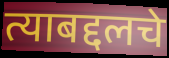
त्याबद्दलचे